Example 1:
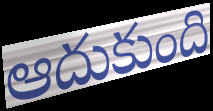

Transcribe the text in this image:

ఆదుకుంది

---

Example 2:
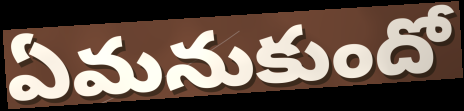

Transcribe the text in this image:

ఏమనుకుందో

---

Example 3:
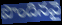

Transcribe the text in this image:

పొందినవై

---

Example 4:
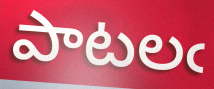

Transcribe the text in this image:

పాటలఁ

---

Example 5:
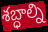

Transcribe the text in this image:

శబ్ధాల్ని